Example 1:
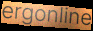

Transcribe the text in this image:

ergonline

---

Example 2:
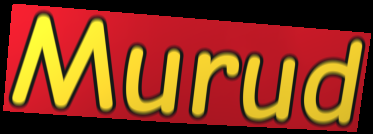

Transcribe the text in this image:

Murud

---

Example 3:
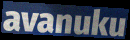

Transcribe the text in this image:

avanuku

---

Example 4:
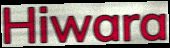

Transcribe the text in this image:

Hiwara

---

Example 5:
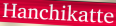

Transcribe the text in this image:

Hanchikatte